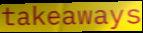
takeaways